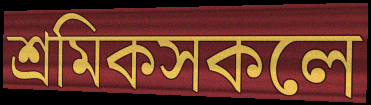
শ্ৰমিকসকলে